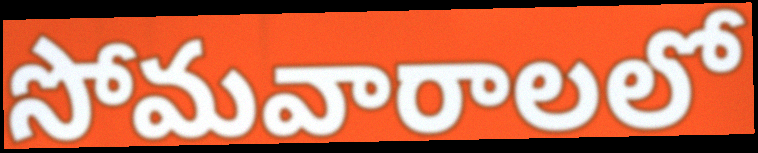
సోమవారాలలో